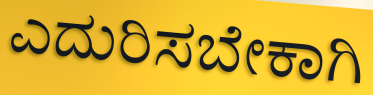
ಎದುರಿಸಬೇಕಾಗಿ